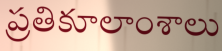
ప్రతికూలాంశాలు